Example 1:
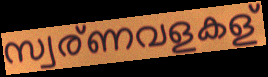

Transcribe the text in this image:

സ്വര്ണവളകള്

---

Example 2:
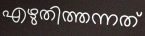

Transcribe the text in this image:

എഴുതിത്തന്നത്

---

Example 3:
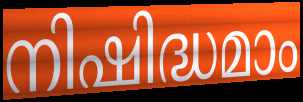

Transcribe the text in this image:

നിഷിദ്ധമാം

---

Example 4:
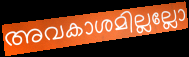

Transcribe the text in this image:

അവകാശമില്ലല്ലോ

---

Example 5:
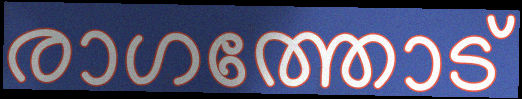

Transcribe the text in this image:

രാഗത്തോട്